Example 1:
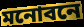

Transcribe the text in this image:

মনোবনে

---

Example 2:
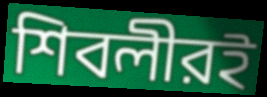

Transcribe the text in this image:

শিবলীরই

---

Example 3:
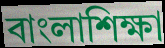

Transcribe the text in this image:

বাংলাশিক্ষা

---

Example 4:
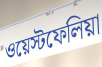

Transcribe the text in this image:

ওয়েস্টফেলিয়া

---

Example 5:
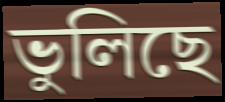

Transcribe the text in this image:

ভুলিছে